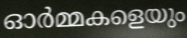
ഓർമ്മകളെയും